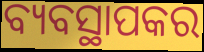
ବ୍ୟବସ୍ଥାପକର